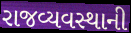
રાજવ્યવસ્થાની